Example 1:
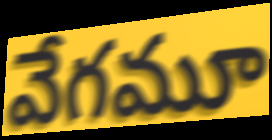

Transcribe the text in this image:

వేగమూ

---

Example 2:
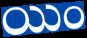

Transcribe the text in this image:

యిం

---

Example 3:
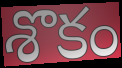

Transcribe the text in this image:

శొకం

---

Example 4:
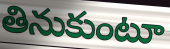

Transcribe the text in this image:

తినుకుంటూ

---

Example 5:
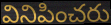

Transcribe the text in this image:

వినిపించరు